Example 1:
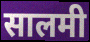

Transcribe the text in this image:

सालमी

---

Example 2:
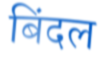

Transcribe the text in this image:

बिंदल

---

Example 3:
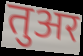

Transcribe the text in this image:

तुअर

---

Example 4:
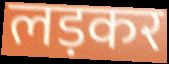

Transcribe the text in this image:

लड़कर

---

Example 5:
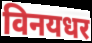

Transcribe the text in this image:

विनयधर